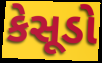
કેસૂડો